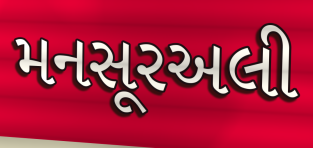
મનસૂરઅલી